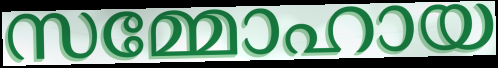
സമ്മോഹായ